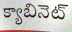
క్యాబినెట్